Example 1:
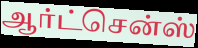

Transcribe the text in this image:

ஆர்ட்சென்ஸ்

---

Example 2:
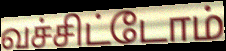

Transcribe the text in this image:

வச்சிட்டோம்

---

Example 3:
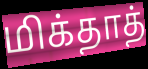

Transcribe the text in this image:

மிக்தாத்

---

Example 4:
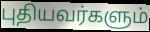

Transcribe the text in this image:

புதியவர்களும்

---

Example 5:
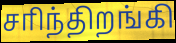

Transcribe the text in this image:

சரிந்திறங்கி